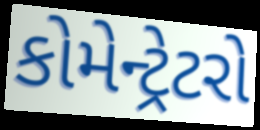
કોમેન્ટ્રેટરો